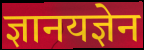
ज्ञानयज्ञेन